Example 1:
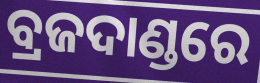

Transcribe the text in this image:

ବ୍ରଜଦାଣ୍ଡରେ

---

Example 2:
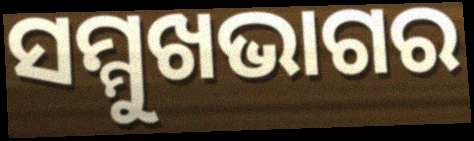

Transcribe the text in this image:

ସମ୍ମୁଖଭାଗର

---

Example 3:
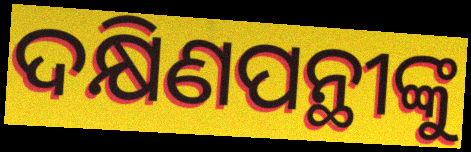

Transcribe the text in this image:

ଦକ୍ଷିଣପନ୍ଥୀଙ୍କୁ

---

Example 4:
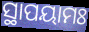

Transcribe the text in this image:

ସ୍ଥାପୟାମଃ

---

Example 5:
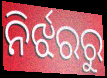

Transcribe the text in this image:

ନିର୍ଝରରୁ